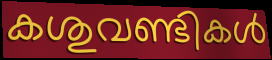
കശുവണ്ടികൾ